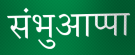
संभुआप्पा